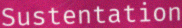
Sustentation